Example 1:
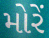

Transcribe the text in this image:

મોરેં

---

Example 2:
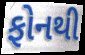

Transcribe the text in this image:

ફોનથી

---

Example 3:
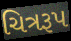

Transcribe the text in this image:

ચિત્રરૂપ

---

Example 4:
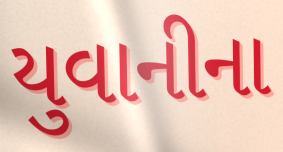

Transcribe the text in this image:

યુવાનીના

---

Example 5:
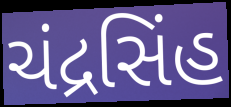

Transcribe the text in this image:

ચંદ્રસિંહ